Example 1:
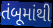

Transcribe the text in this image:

તંબૂમાંથી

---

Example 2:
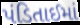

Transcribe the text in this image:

પંડિતાઈમાં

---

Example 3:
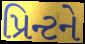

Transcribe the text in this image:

પ્રિન્ટને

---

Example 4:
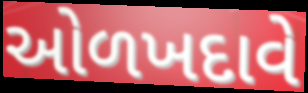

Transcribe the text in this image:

ઓળખદાવે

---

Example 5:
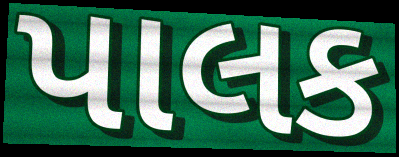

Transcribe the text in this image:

પાલક